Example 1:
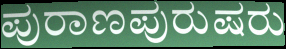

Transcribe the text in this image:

ಪುರಾಣಪುರುಷರು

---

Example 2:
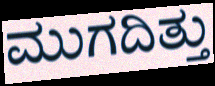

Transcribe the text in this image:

ಮುಗದಿತ್ತು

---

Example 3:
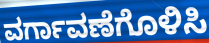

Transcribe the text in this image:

ವರ್ಗಾವಣೆಗೊಳಿಸಿ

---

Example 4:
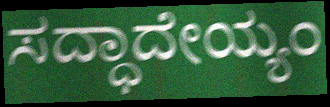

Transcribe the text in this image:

ಸದ್ಧಾದೇಯ್ಯಂ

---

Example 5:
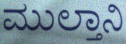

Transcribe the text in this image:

ಮುಲ್ತಾನಿ